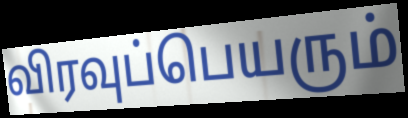
விரவுப்பெயரும்